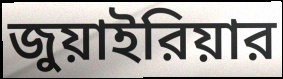
জুয়াইরিয়ার